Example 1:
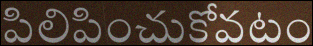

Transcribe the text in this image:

పిలిపించుకోవటం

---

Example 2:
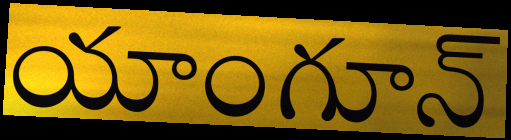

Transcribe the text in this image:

యాంగూన్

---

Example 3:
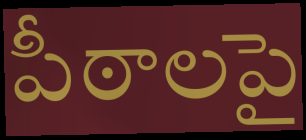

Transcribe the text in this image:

పీఠాలపై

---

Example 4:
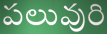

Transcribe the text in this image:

పలువురి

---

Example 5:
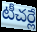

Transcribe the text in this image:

టీచర్లే